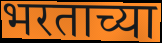
भरताच्या